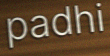
padhi